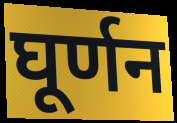
घूर्णन